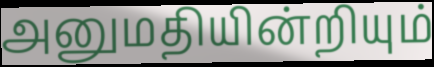
அனுமதியின்றியும்